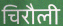
चिरौली